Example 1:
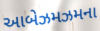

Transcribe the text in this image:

આબેઝમઝમના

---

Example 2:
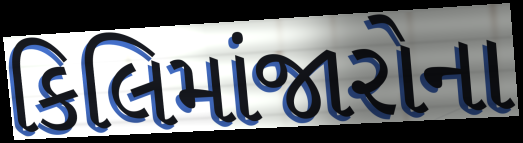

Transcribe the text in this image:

કિલિમાંજારોના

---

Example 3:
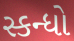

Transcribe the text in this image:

સ્કન્ધો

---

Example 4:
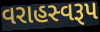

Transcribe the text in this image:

વરાહસ્વરૂપ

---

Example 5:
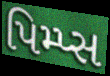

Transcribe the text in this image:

પિમ્પ્સ